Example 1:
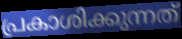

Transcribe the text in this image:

പ്രകാശിക്കുന്നത്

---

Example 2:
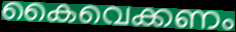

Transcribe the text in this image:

കൈവെക്കണം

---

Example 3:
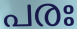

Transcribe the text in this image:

പരഃ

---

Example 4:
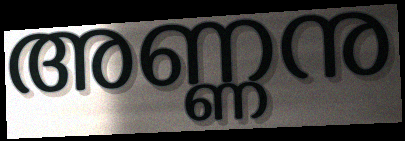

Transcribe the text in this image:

അണ്ണനു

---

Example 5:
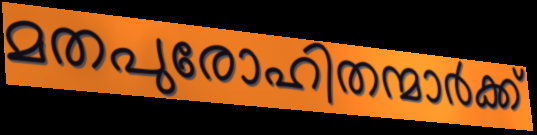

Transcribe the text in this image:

മതപുരോഹിതന്മാർക്ക്